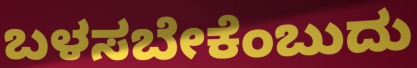
ಬಳಸಬೇಕೆಂಬುದು